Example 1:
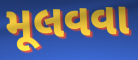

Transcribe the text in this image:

મૂલવવા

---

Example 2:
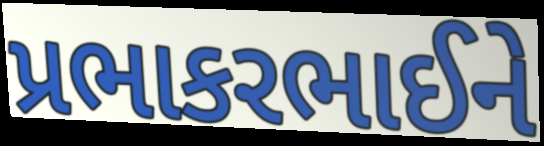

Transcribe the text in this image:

પ્રભાકરભાઈને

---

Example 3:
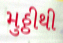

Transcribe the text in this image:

મુઠ્ઠીથી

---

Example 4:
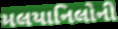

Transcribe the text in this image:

મલયાનિલોની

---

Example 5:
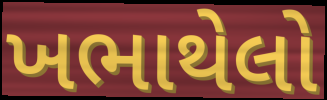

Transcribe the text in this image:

ખભાથેલો